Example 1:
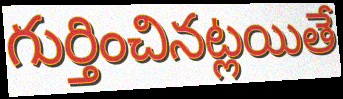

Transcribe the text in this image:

గుర్తించినట్లయితే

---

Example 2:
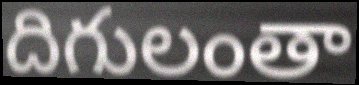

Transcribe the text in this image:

దిగులంతా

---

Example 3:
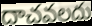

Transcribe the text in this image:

దాచవలదు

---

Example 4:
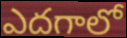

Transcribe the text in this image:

ఎదగాలో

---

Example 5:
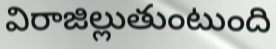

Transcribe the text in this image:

విరాజిల్లుతుంటుంది